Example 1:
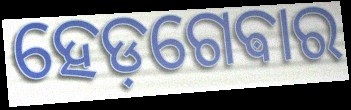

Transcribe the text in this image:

ହେଡ଼ଗେଵାର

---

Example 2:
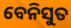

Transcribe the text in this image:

ବେନିସୁତ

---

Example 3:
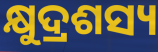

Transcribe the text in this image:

କ୍ଷୁଦ୍ରଶସ୍ୟ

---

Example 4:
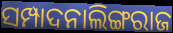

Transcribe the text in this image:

ସମ୍ପାଦନାଲିଙ୍ଗରାଜ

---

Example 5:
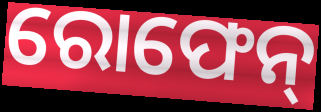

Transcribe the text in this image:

ରୋଫେନ୍